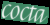
cocta